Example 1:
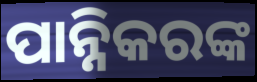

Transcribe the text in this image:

ପାନ୍ନିକରଙ୍କ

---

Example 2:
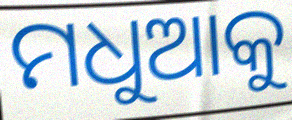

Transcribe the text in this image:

ମଧୁଆକୁ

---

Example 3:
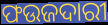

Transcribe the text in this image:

ଫଉଜଦାରୀ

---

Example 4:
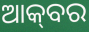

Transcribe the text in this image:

ଆକ୍‌ବର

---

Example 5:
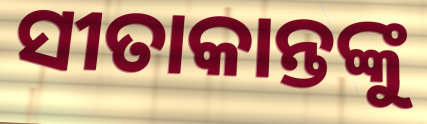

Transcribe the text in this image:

ସୀତାକାନ୍ତଙ୍କୁ